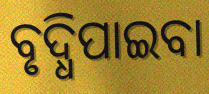
ବୃଦ୍ଧିପାଇବା